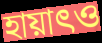
হায়াৎও